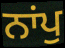
ਨਾਂਪੁ